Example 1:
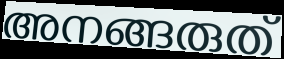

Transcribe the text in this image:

അനങ്ങരുത്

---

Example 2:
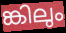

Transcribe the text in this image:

ങ്കിലും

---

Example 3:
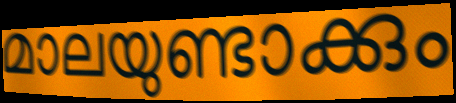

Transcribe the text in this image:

മാലയുണ്ടാക്കും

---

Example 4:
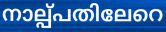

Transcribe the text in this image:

നാല്പ്പതിലേറെ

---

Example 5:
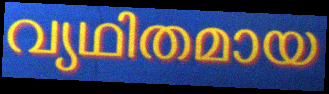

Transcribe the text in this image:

വ്യഥിതമായ